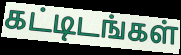
கட்டிடங்கள்